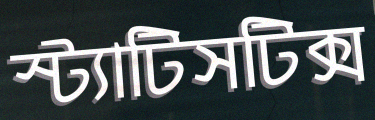
স্ট্যাটিসটিক্স